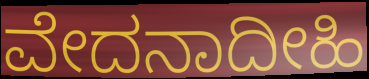
ವೇದನಾದೀಹಿ